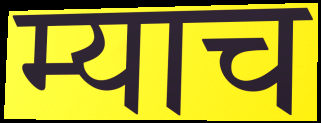
म्याच